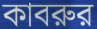
কাবরুর